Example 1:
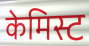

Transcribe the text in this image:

केमिस्ट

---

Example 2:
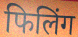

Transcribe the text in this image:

फिलिंग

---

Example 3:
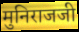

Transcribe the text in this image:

मुनिराजजी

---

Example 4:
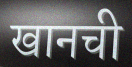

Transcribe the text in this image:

खानची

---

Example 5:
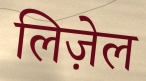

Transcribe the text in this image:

लिज़ेल